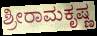
ಶ್ರೀರಾಮಕೃಷ್ಣ